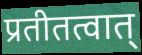
प्रतीतत्वात्